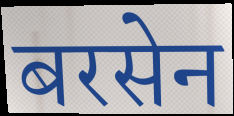
बरसेन